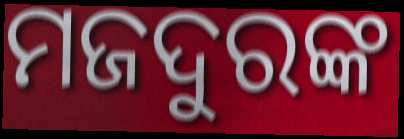
ମଜଦୁରଙ୍କ